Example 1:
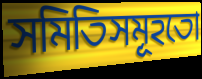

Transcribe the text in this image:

সমিতিসমূহতো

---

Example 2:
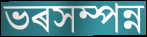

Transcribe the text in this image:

ভৰসম্পন্ন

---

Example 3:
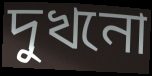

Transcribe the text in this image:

দুখনো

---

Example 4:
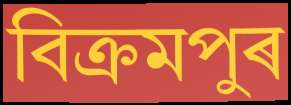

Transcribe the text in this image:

বিক্ৰমপুৰ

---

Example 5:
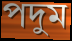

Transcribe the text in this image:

পদুম